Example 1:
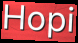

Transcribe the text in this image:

Hopi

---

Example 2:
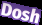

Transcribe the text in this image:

Dosh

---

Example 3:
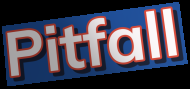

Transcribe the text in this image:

Pitfall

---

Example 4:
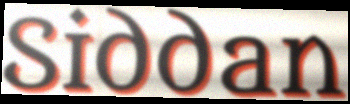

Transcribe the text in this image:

Siddan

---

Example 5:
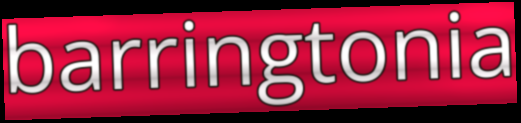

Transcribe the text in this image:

barringtonia